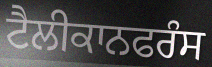
ਟੈਲੀਕਾਨਫਰੰਸ